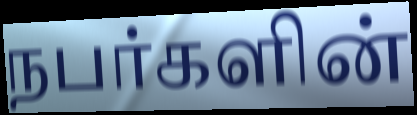
நபர்களின்